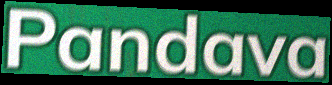
Pandava